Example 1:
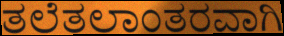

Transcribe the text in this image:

ತಲೆತಲಾಂತರವಾಗಿ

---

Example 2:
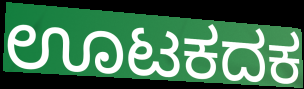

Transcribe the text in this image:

ಊಟಕದಕ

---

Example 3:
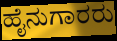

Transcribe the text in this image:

ಹೈನುಗಾರರು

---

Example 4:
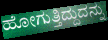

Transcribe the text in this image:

ಹೋಗುತ್ತಿದ್ದುದನ್ನು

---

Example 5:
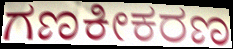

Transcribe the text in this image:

ಗಣಕೀಕರಣ